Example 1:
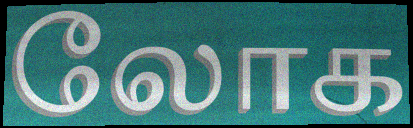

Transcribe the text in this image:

லோக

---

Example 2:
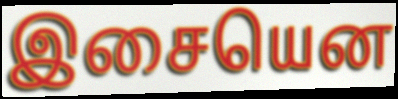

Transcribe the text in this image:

இசையென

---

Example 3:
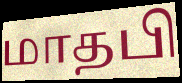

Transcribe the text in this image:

மாதபி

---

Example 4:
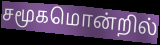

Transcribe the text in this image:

சமூகமொன்றில்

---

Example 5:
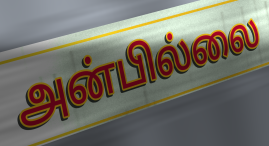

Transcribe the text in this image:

அன்பில்லை